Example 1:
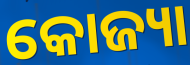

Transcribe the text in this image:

କୋଜ୍ୟା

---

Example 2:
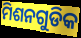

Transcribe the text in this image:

ମିଶନଗୁଡିକ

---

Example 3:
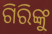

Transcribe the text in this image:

ଗିରିଙ୍କୁ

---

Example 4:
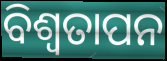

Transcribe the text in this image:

ବିଶ୍ବତାପନ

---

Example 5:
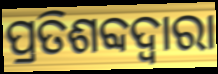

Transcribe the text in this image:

ପ୍ରତିଶବ୍ଦଦ୍ୱାରା